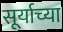
सूर्याच्या